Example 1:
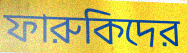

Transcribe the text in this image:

ফারুকিদের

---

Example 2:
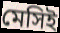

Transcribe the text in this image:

মেসিই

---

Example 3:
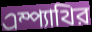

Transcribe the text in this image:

এম্প্যাথির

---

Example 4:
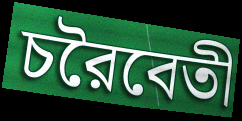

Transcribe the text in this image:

চরৈবেতী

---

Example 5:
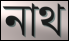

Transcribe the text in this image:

নাথ